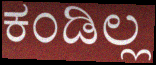
ಕಂಡಿಲ್ಲ